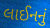
લાઈનનું